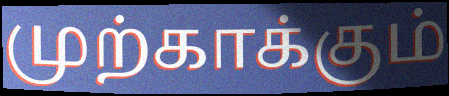
முற்காக்கும்